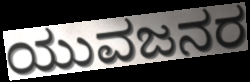
ಯುವಜನರ